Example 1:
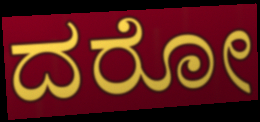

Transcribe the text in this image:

ದರೋ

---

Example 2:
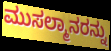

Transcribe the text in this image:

ಮುಸಲ್ಮಾನರನ್ನು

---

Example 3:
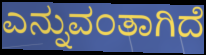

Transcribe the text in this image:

ಎನ್ನುವಂತಾಗಿದೆ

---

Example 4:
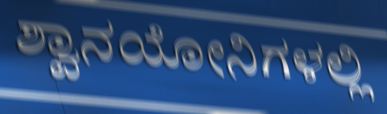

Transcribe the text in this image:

ಶ್ವಾನಯೋನಿಗಳಲ್ಲಿ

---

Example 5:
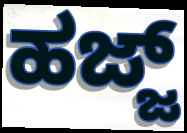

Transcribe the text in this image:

ಹಜ್ಜ್